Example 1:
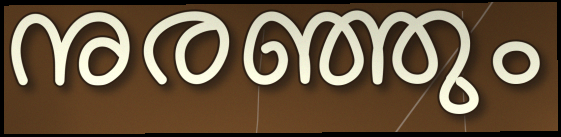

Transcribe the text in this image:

നുരഞ്ഞും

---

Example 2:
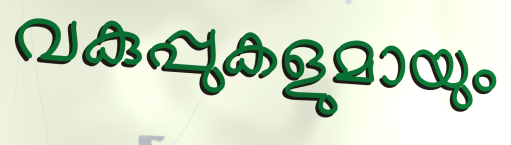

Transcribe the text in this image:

വകുപ്പുകളുമായും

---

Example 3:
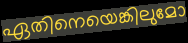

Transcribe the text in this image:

ഏതിനെയെങ്കിലുമോ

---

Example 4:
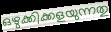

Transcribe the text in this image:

ഒഴുക്കിക്കളയുന്നതു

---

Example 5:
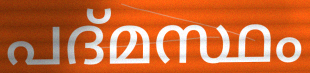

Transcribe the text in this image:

പദ്മസ്ഥം